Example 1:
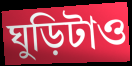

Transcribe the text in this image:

ঘুড়িটাও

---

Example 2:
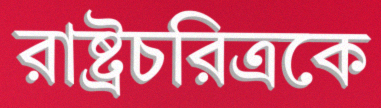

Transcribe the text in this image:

রাষ্ট্রচরিত্রকে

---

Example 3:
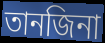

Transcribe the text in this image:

তানজিনা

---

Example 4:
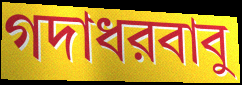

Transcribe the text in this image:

গদাধরবাবু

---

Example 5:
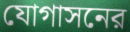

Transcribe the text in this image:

যোগাসনের